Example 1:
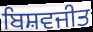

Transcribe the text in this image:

ਬਿਸ਼ਵਜੀਤ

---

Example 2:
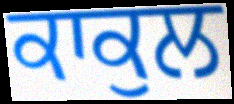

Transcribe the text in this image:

ਕਾਕੁਲ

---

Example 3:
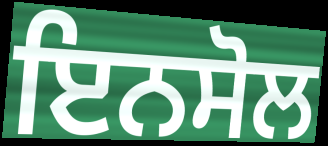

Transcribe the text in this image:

ਇਨਸੋਲ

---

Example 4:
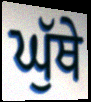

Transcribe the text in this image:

ਘੁੱਥੇ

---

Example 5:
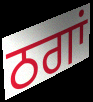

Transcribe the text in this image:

ਠਗਾਂ